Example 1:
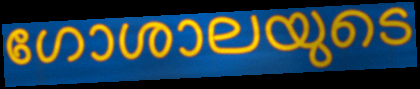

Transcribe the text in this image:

ഗോശാലയുടെ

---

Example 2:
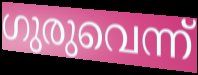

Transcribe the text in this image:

ഗുരുവെന്ന്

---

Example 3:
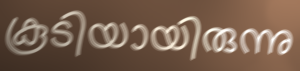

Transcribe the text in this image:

കൂടിയായിരുന്നു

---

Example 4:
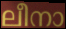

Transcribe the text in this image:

ലീനാ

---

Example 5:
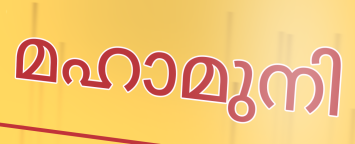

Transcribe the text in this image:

മഹാമുനി